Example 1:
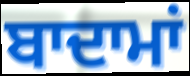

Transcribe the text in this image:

ਬਾਦਾਮਾਂ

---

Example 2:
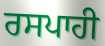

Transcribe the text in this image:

ਰਸਪਾਹੀ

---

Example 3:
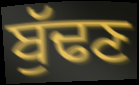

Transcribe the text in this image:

ਬੁੱਢਣ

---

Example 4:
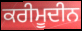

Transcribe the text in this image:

ਕਰੀਮੂਦੀਨ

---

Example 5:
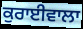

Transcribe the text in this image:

ਕੁਰਾਈਵਾਲਾ